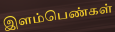
இளம்பெண்கள்